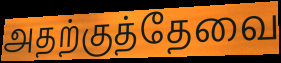
அதற்குத்தேவை